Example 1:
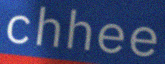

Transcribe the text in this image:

chhee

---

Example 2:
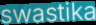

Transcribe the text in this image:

swastika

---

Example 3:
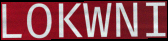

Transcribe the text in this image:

LOKWNI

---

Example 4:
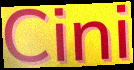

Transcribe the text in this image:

Cini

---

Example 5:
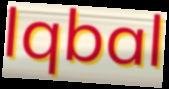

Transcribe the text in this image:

Iqbal